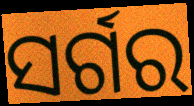
ସର୍ଗର